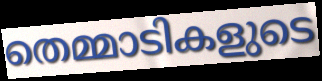
തെമ്മാടികളുടെ